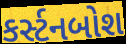
કર્સ્ટનબોશ